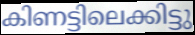
കിണട്ടിലെക്കിട്ടു